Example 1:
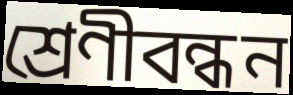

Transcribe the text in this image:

শ্রেণীবন্ধন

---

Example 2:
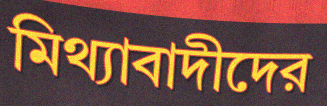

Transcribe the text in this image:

মিথ্যাবাদীদের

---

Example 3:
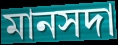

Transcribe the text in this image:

মানসদা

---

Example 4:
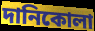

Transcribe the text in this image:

দানিকোলা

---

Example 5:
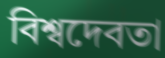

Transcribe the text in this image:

বিশ্বদেবতা